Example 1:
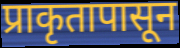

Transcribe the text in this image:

प्राकृतापासून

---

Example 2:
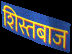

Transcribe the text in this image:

शिस्तबाज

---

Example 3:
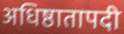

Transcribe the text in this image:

अधिष्ठातापदी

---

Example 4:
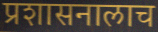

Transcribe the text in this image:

प्रशासनालाच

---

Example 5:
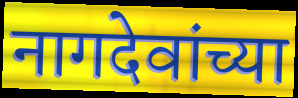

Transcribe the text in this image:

नागदेवांच्या